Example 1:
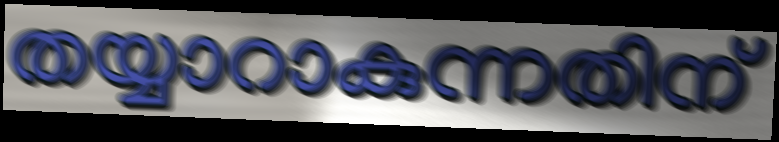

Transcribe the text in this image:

തയ്യാറാകുന്നതിന്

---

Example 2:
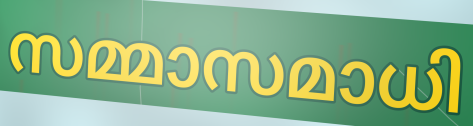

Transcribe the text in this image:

സമ്മാസമാധി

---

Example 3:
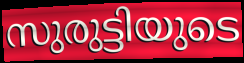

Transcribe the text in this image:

സുരുട്ടിയുടെ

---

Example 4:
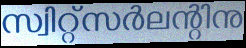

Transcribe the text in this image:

സ്വിറ്റ്സർലന്റിനു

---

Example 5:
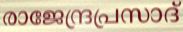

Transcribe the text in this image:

രാജേന്ദ്രപ്രസാദ്